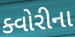
ક્વોરીના